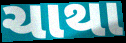
ચાથા